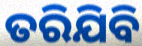
ତରିଯିବି